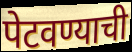
पेटवण्याची